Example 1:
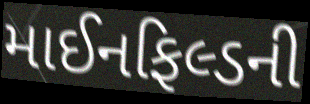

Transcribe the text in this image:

માઈનફિલ્ડની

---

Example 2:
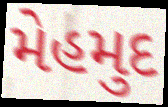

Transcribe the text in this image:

મેહમુદ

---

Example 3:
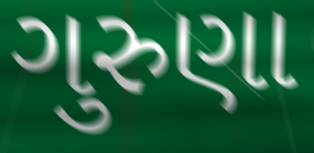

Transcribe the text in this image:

ગુરુણા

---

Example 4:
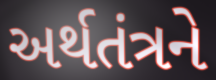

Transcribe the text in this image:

અર્થતંત્રને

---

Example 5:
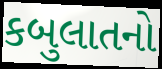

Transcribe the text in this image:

કબુલાતનો